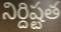
నిర్దిష్టత